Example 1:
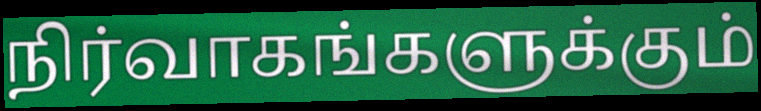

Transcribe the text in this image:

நிர்வாகங்களுக்கும்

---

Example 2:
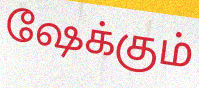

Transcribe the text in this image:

ஷேக்கும்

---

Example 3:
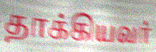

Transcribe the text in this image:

தாக்கியவர்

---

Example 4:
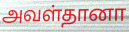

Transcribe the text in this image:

அவள்தானா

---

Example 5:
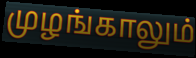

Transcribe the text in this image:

முழங்காலும்